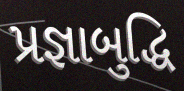
પ્રજ્ઞાબુદ્ધિ